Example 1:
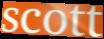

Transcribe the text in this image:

scott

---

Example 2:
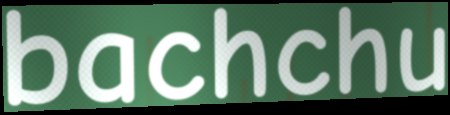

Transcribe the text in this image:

bachchu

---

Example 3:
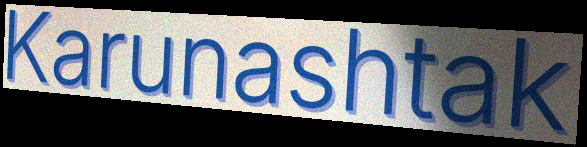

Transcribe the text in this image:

Karunashtak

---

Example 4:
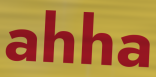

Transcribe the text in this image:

ahha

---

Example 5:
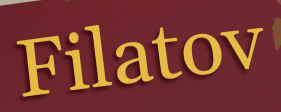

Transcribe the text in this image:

Filatov